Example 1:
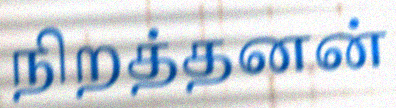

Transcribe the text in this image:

நிறத்தனன்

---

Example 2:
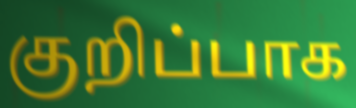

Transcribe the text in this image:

குறிப்பாக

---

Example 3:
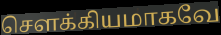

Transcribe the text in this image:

சௌக்கியமாகவே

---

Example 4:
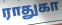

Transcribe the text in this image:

ராதுகா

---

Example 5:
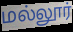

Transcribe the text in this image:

மல்லூர்